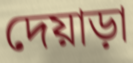
দেয়াড়া